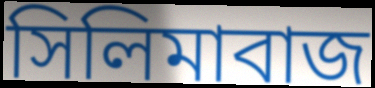
সিলিমাবাজ